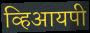
व्हिआयपी